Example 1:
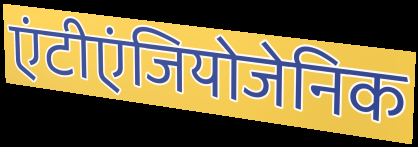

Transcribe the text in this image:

एंटीएंजियोजेनिक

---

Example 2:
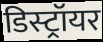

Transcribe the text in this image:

डिस्‍ट्रॉयर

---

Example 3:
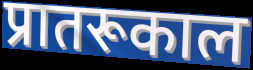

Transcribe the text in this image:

प्रातरूकाल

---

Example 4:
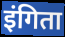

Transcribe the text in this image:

इंगिता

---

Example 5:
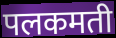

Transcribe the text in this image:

पलकमती